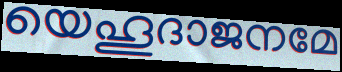
യെഹൂദാജനമേ